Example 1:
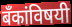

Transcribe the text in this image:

बँकांविषयी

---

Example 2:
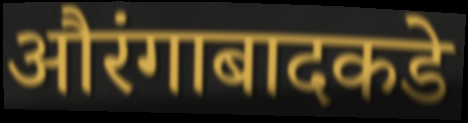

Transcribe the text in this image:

औरंगाबादकडे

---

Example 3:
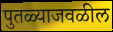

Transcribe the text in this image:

पुतळ्याजवळील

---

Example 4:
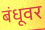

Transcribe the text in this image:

बंधूवर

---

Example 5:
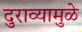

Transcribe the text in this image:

दुराव्यामुळे